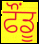
ਫੌਂਡੂ